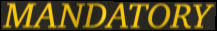
MANDATORY